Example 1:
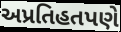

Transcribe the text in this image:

અપ્રતિહતપણે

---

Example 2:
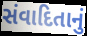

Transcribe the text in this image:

સંવાદિતાનું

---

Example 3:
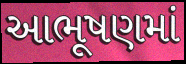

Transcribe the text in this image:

આભૂષણમાં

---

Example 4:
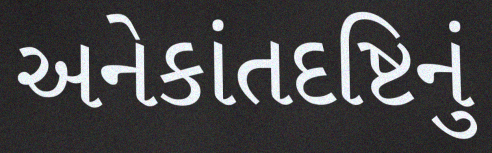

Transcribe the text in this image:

અનેકાંતદષ્ટિનું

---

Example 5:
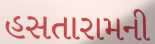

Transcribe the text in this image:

હસતારામની